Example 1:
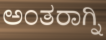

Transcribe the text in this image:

ಅಂತರಾಗ್ನಿ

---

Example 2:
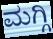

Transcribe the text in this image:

ಮಗ್ಗಿ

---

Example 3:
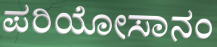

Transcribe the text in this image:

ಪರಿಯೋಸಾನಂ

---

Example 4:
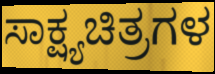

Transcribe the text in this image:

ಸಾಕ್ಷ್ಯಚಿತ್ರಗಳ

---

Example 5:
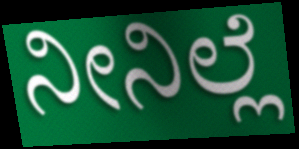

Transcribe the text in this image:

ನೀನಿಲ್ಲೆ